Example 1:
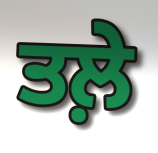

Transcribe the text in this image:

ਤਲ਼ੇ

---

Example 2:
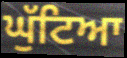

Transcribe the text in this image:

ਘੁੱਟਿਆ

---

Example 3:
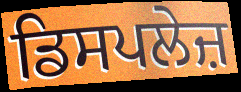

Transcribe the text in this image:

ਡਿਸਪਲੇਜ਼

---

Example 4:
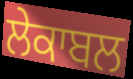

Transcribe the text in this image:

ਲੇਕਾਬਲ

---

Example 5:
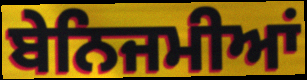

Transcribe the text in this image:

ਬੇਨਿਜਮੀਆਂ